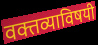
वक्तव्याविषयी